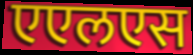
एएलएस